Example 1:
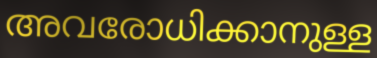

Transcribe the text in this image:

അവരോധിക്കാനുള്ള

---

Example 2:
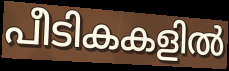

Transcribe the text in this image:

പീടികകളിൽ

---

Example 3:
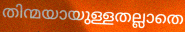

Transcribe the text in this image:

തിന്മയായുള്ളതല്ലാതെ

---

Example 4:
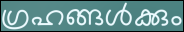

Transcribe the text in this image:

ഗ്രഹങ്ങൾക്കും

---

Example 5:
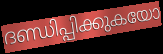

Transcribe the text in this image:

ദണ്ഡിപ്പിക്കുകയോ